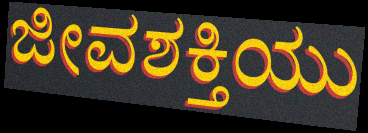
ಜೀವಶಕ್ತಿಯು